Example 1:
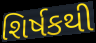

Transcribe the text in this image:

શિર્ષકથી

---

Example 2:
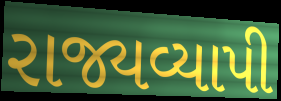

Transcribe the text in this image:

રાજ્યવ્યાપી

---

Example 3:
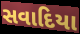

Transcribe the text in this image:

સવાદિયા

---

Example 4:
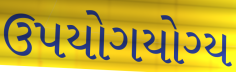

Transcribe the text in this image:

ઉપયોગયોગ્ય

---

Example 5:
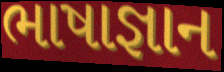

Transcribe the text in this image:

ભાષાજ્ઞાન